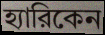
হ্যারিকেন